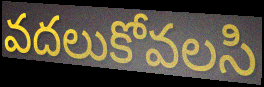
వదలుకోవలసి